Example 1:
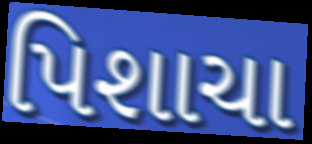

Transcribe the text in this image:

પિશાચા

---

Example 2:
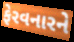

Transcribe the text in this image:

ફેરવનારને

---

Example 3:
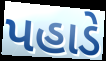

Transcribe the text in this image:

પહાડે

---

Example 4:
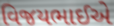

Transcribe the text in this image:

વિજયભાઈએ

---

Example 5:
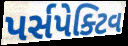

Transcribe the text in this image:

પર્સપેક્ટિવ